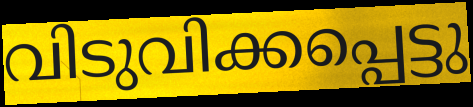
വിടുവിക്കപ്പെട്ടു